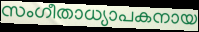
സംഗീതാധ്യാപകനായ